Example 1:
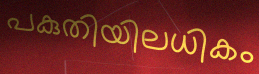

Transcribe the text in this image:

പകുതിയിലധികം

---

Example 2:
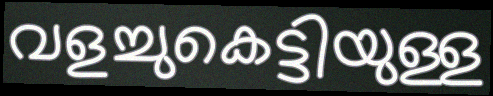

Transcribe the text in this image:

വളച്ചുകെട്ടിയുള്ള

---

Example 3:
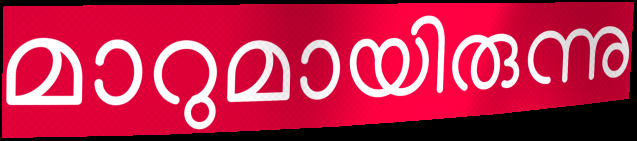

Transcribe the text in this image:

മാറുമായിരുന്നു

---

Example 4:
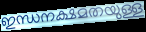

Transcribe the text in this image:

ഇന്ധനക്ഷമതയുള്ള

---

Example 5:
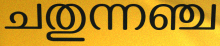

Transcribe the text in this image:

ചതുന്നഞ്ച